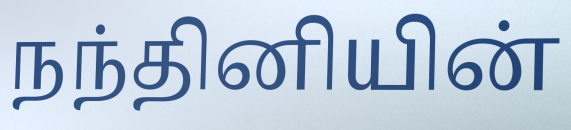
நந்தினியின்